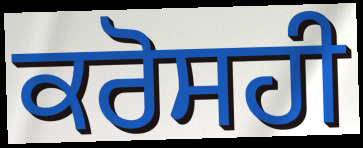
ਕਰੋਸਹੀ